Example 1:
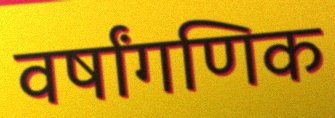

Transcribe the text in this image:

वर्षांगणिक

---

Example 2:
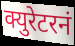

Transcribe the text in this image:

क्युरेटरनं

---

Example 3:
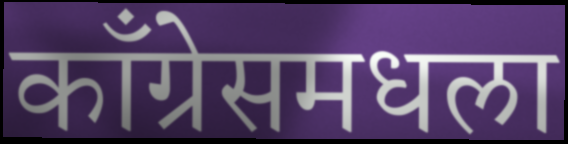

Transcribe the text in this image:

काँग्रेसमधला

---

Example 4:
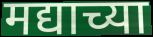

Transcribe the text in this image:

मद्याच्या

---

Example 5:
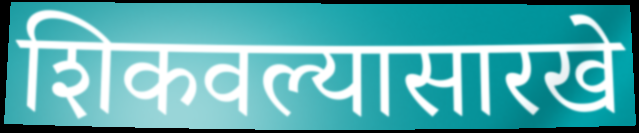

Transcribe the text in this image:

शिकवल्यासारखे